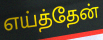
எய்த்தேன்